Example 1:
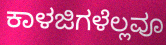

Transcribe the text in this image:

ಕಾಳಜಿಗಳೆಲ್ಲವೂ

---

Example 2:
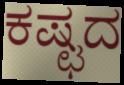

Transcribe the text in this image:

ಕಷ್ಟದ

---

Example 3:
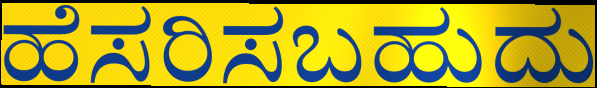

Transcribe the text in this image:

ಹೆಸರಿಸಬಹುದು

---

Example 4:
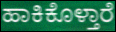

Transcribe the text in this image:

ಹಾಕಿಕೊಳ್ತಾರೆ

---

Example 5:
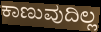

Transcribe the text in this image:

ಕಾಣುವುದಿಲ್ಲ